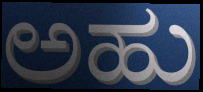
ಅಹು